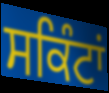
ਸਕਿੰਟਾਂ